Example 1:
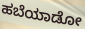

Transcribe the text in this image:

ಹಬೆಯಾಡೋ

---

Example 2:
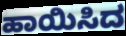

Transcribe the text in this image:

ಹಾಯಿಸಿದ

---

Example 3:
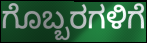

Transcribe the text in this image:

ಗೊಬ್ಬರಗಳಿಗೆ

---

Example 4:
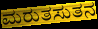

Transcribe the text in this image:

ಮರುತಸುತನ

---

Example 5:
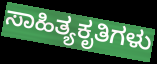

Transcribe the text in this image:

ಸಾಹಿತ್ಯಕೃತಿಗಳು